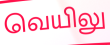
வெயிலு